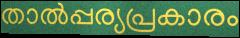
താൽപ്പര്യപ്രകാരം